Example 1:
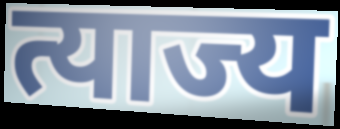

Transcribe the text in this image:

त्याज्य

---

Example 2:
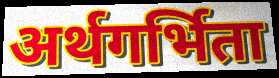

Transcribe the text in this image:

अर्थगर्भिता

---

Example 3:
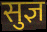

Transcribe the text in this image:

सुज्ञ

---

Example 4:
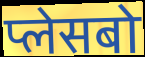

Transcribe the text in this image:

प्लेसबो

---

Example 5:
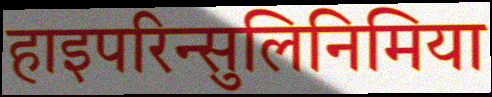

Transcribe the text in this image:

हाइपरिन्सुलिनिमिया